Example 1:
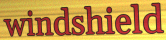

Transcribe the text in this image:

windshield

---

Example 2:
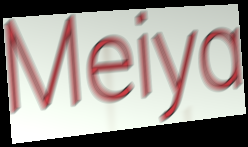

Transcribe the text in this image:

Meiya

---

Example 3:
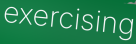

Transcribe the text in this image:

exercising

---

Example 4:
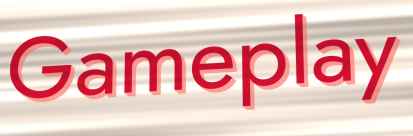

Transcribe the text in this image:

Gameplay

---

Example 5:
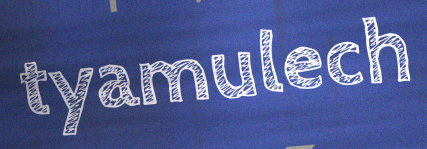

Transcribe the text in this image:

tyamulech